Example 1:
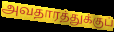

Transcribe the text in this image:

அவதாரத்துக்குப்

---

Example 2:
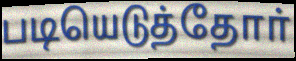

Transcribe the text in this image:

படியெடுத்தோர்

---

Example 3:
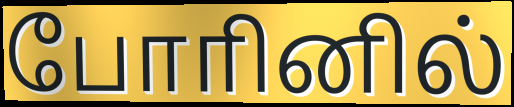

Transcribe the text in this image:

போரினில்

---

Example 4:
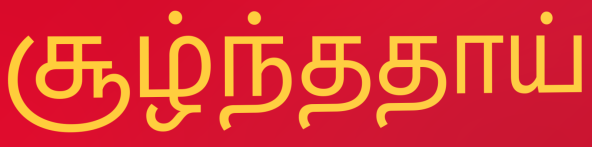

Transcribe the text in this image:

சூழ்ந்ததாய்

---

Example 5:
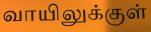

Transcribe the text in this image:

வாயிலுக்குள்